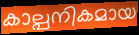
കാല്പനികമായ